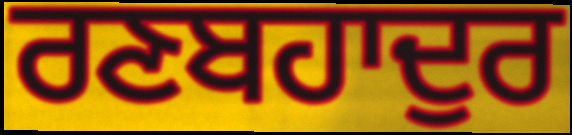
ਰਣਬਹਾਦੁਰ